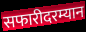
सफारीदरम्यान